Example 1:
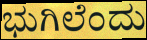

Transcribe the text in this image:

ಭುಗಿಲೆಂದು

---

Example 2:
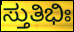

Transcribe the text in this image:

ಸ್ತುತಿಭಿಃ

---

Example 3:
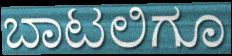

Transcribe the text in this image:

ಬಾಟಲಿಗೂ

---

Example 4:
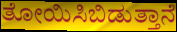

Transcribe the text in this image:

ತೋಯಿಸಿಬಿಡುತ್ತಾನೆ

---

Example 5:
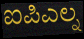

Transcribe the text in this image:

ಐಪಿಎಲ್ನ